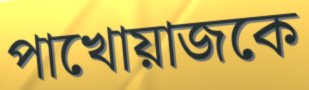
পাখোয়াজকে